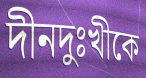
দীনদুঃখীকে